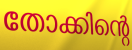
തോക്കിന്റെ